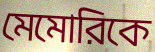
মেমোরিকে